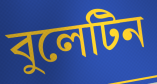
বুলেটিন